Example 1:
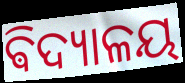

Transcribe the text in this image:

ଵିଦ୍ୟାଳୟ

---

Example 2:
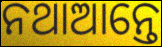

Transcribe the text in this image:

ନଥାଆନ୍ତେ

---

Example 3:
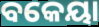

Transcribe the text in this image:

ବକେୟା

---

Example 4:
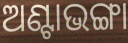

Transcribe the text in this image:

ଅଣ୍ଟାଭଙ୍ଗା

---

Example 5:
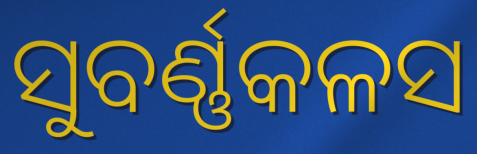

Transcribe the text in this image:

ସୁବର୍ଣ୍ଣକଳସ